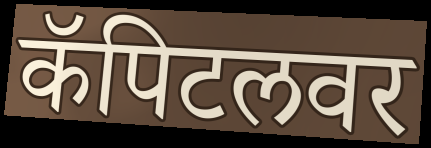
कॅपिटलवर